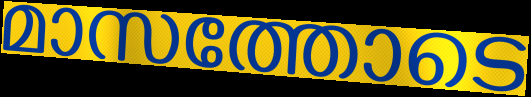
മാസത്തോടെ